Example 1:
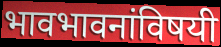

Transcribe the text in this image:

भावभावनांविषयी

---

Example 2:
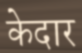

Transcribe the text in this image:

केदार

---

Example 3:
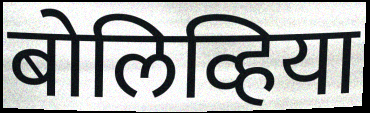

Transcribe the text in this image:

बोलिव्हिया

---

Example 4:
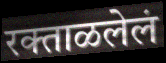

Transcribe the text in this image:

रक्ताळलेलं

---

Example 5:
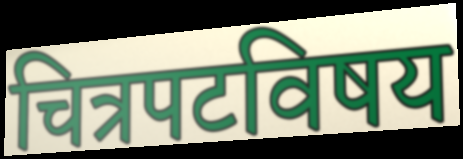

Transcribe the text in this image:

चित्रपटविषय